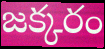
జక్కరం